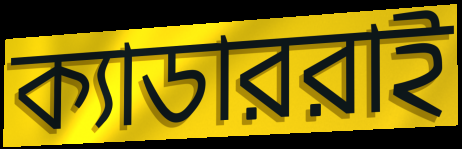
ক্যাডাররাই